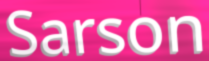
Sarson